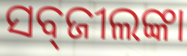
ସବ୍‌ଜୀଲଙ୍କା